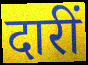
दारीं